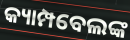
କ୍ୟାମ୍ପବେଲଙ୍କ